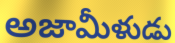
అజామీళుడు